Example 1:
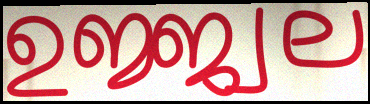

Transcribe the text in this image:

ഉജ്ജ്വല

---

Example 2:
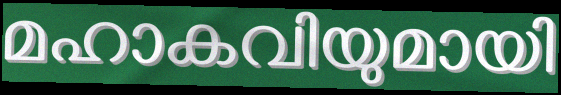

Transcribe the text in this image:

മഹാകവിയുമായി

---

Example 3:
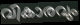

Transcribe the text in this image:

വികാരവും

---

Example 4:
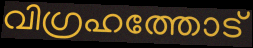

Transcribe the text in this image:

വിഗ്രഹത്തോട്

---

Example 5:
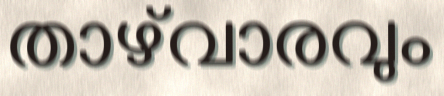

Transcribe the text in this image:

താഴ്‌വാരവും